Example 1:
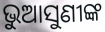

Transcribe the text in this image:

ଭୁଆସୁଣୀଙ୍କ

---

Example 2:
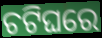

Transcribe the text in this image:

ଚଟିଘରେ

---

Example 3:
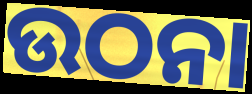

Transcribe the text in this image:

ଉଠନା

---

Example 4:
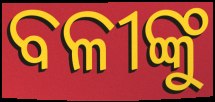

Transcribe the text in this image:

ବଳୀଙ୍କୁ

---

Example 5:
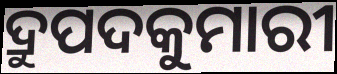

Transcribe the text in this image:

ଦ୍ରୁପଦକୁମାରୀ